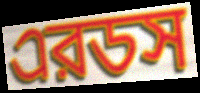
এরডস